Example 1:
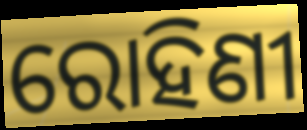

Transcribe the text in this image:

ରୋହିଣୀ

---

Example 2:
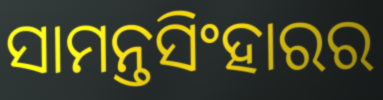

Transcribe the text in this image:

ସାମନ୍ତସିଂହାରର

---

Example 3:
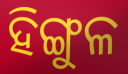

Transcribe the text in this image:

ହିଙ୍ଗୁଳ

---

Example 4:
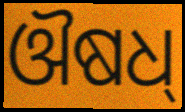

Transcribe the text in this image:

ଔଷଧ୍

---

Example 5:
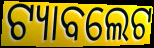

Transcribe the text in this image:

ଟ୍ୟାବଲେଟ